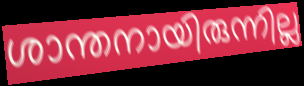
ശാന്തനായിരുന്നില്ല